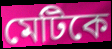
মেটিকে